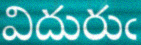
విదురుఁ